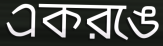
একরঙে